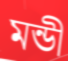
মন্ডী